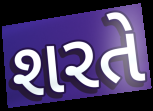
શરતે